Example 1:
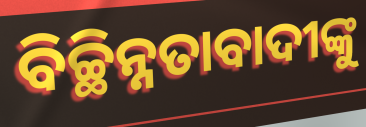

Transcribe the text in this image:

ବିଚ୍ଛିନ୍ନତାବାଦୀଙ୍କୁ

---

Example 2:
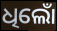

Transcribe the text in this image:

ଧିଲୋଁ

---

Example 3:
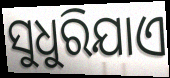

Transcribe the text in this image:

ସୁଧୁରିଯାଏ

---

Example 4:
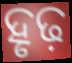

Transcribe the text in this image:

ହୃଢ଼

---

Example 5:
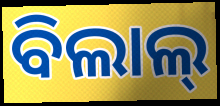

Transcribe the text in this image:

ବିଲାଲ୍